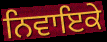
ਨਿਵਾਇਕੇ